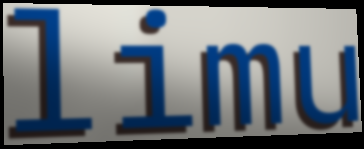
limu